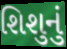
શિશુનું